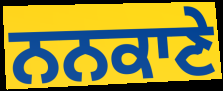
ਨਨਕਾਣੇ